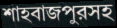
শাহবাজপুরসহ